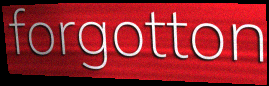
forgotton